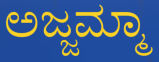
ಅಜ್ಜಮ್ಮಾ